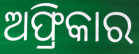
ଅଫ୍ରିକାର